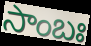
సాంబః